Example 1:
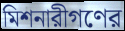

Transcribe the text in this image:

মিশনারীগণের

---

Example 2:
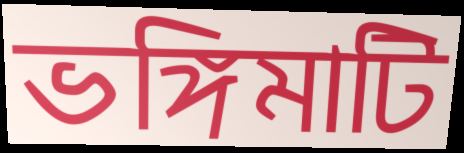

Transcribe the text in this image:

ভঙ্গিমাটি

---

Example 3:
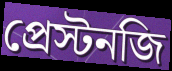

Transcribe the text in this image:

প্রেস্টনজি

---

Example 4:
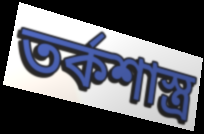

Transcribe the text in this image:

তর্কশাস্ত্র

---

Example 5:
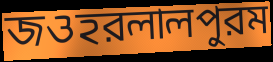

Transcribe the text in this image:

জওহরলালপুরম